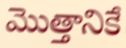
మొత్తానికే